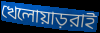
খেলোয়াড়রাই